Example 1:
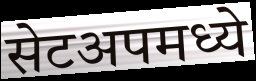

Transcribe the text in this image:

सेटअपमध्ये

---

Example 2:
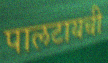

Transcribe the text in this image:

पालटायची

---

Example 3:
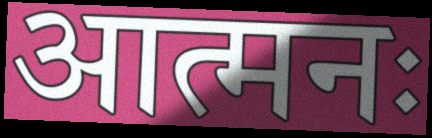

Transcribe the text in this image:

आत्मनः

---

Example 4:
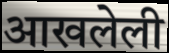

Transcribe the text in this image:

आखलेली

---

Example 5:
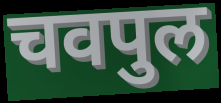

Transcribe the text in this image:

चवपुल